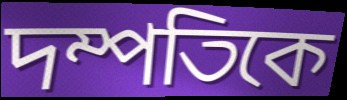
দম্পতিকে